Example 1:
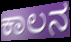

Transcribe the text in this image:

ಕಾಲನ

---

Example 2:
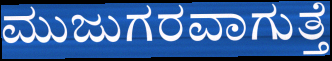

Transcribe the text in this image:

ಮುಜುಗರವಾಗುತ್ತೆ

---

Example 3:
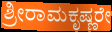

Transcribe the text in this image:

ಶ್ರೀರಾಮಕೃಷ್ಣರೇ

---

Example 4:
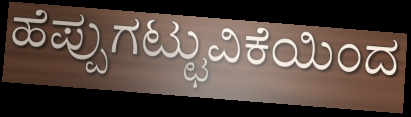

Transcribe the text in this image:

ಹೆಪ್ಪುಗಟ್ಟುವಿಕೆಯಿಂದ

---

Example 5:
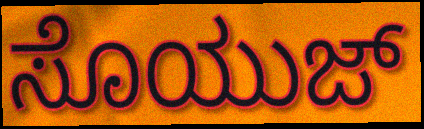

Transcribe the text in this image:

ಸೊಯುಜ್